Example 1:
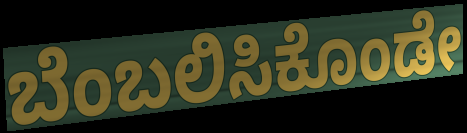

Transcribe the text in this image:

ಬೆಂಬಲಿಸಿಕೊಂಡೇ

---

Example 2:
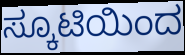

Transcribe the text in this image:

ಸ್ಕೂಟಿಯಿಂದ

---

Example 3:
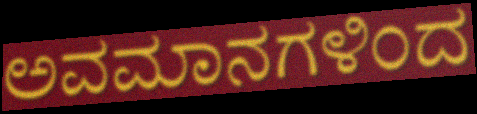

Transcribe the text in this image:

ಅವಮಾನಗಳಿಂದ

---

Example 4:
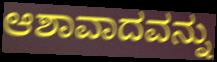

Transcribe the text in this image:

ಆಶಾವಾದವನ್ನು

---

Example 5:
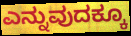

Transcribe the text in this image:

ಎನ್ನುವುದಕ್ಕೂ